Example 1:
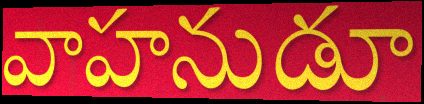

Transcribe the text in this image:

వాహనుడూ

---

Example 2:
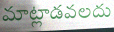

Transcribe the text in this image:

మాట్లాడవలదు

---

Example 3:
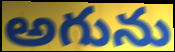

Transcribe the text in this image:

అగును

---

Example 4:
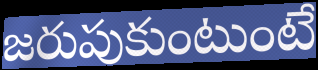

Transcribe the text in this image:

జరుపుకుంటుంటే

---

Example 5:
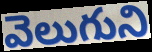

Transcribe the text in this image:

వెలుగుని